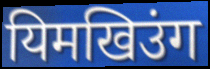
यिमखिउंग